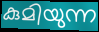
കുമിയുന്ന